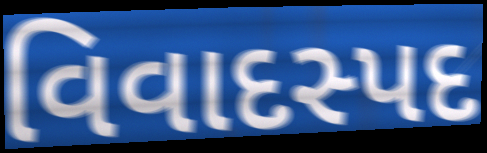
વિવાદસ્પદ